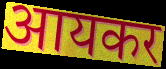
आयकर